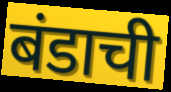
बंडाची